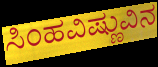
ಸಿಂಹವಿಷ್ಣುವಿನ